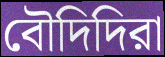
বৌদিদিরা